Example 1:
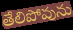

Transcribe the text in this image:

తేలిపోవును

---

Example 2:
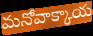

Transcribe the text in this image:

మనోవాక్కాయ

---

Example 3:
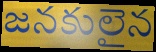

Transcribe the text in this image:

జనకులైన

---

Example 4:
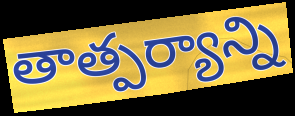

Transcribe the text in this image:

తాత్పర్యాన్ని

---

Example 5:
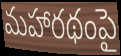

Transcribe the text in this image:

మహారథంపై